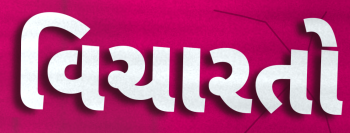
વિચારતો